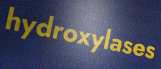
hydroxylases